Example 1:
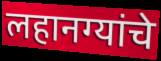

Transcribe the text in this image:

लहानग्यांचे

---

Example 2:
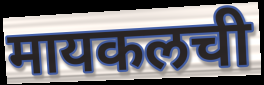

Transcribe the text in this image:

मायकलची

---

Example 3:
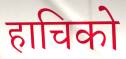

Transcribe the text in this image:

हाचिको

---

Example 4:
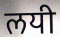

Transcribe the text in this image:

लयी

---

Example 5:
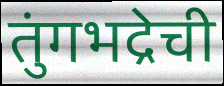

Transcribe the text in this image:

तुंगभद्रेची